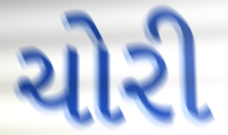
ચોરી